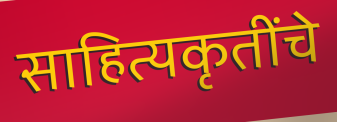
साहित्यकृतींचे